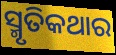
ସ୍ମୃତିକଥାର